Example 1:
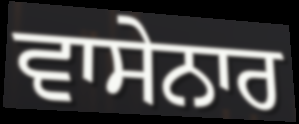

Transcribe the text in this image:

ਵਾਸੇਨਾਰ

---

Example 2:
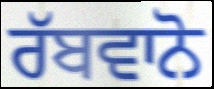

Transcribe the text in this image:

ਰੱਬਵਾਨੋ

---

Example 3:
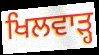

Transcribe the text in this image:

ਖਿਲਵਾੜ੍ਹ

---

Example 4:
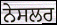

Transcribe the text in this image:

ਨੇਸਲਰ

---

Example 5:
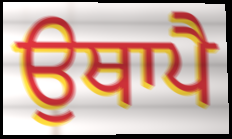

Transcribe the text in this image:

ਉਥਾਪੈ